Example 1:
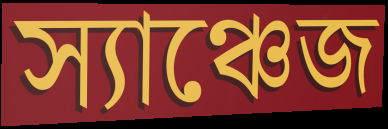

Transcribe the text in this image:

স্যাঞ্চেজ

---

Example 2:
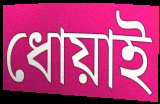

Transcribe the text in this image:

ধোয়াই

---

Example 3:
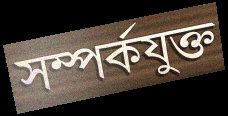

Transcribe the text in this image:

সম্পর্কযুক্ত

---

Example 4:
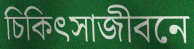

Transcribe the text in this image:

চিকিৎসাজীবনে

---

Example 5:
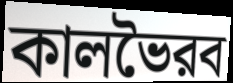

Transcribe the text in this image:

কালভৈরব